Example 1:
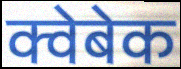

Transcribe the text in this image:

क्वेबेक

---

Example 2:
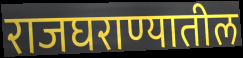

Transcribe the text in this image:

राजघराण्यातील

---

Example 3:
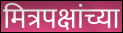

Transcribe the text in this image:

मित्रपक्षांच्या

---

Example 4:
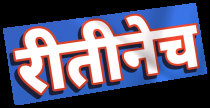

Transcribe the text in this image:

रीतीनेच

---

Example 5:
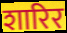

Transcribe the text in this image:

शारिर